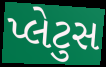
પ્લેટુસ